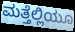
ಮತ್ತೆಲ್ಲಿಯೂ